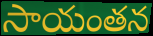
సాయంతన